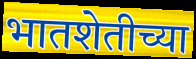
भातशेतीच्या